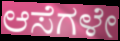
ಆಸೆಗಳೇ